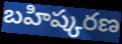
బహిష్కరణ